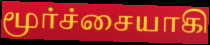
மூர்ச்சையாகி